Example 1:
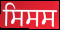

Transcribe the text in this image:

ਸਿਸਸ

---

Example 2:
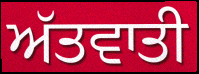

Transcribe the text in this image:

ਅੱਤਵਾਤੀ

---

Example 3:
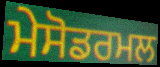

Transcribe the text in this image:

ਮੇਸੋਡਰਮਲ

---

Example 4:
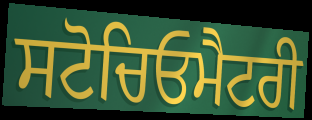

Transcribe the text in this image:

ਸਟੋਚਿਓਮੈਟਰੀ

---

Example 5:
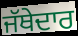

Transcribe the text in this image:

ਜੱਥੇਦਾਰ